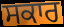
ਸਕਾਰ